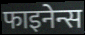
फाइनेन्स